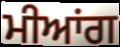
ਮੀਆਂਗ